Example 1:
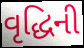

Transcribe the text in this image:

વૃદ્ધિની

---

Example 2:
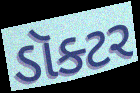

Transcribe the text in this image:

ડૉક્ટર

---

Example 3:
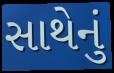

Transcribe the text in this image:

સાથેનું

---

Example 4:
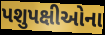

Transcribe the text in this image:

પશુપક્ષીઓના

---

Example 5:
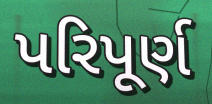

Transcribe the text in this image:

પરિપૂર્ણ